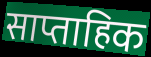
साप्‍ताहिक